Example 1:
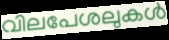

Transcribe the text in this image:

വിലപേശലുകൾ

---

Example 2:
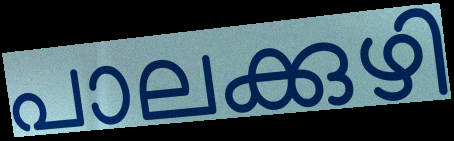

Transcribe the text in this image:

പാലക്കുഴി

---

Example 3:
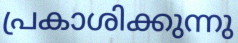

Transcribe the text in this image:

പ്രകാശിക്കുന്നു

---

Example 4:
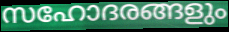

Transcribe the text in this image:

സഹോദരങ്ങളും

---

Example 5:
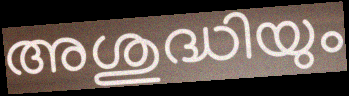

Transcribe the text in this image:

അശുദ്ധിയും